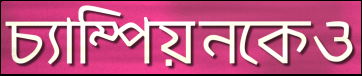
চ্যাম্পিয়নকেও